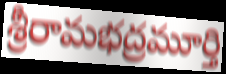
శ్రీరామభద్రమూర్తి